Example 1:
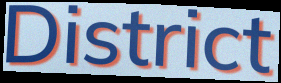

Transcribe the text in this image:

District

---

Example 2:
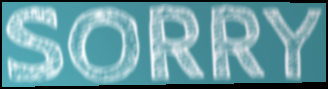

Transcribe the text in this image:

SORRY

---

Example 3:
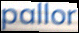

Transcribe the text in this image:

pallor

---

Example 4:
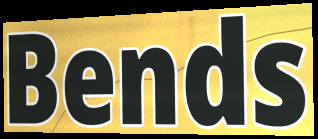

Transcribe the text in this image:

Bends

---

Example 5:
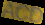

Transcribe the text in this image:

ACD